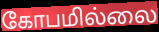
கோபமில்லை